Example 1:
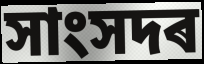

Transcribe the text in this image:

সাংসদৰ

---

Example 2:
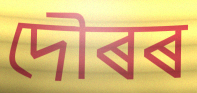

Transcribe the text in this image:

দৌৰৰ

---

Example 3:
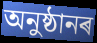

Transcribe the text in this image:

অনুষ্ঠানৰ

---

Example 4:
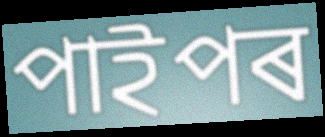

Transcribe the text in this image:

পাইপৰ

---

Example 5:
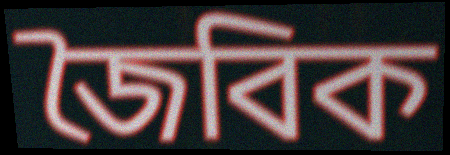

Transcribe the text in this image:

জৈবিক